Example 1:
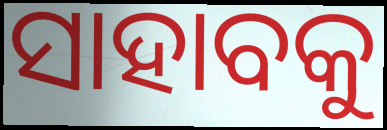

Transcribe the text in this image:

ସାହାବକୁ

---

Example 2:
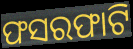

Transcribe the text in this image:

ଫସରଫାଟି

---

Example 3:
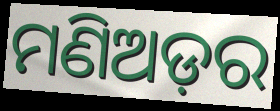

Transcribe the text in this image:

ମଣିଅଡ଼ର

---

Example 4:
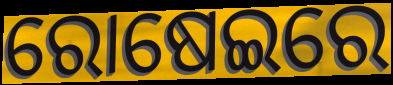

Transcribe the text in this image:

ରୋଷେଇରେ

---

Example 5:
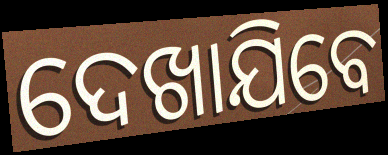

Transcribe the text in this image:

ଦେଖାଯିବେ